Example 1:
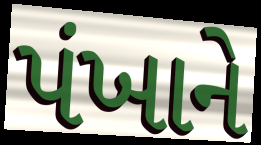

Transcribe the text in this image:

પંખાને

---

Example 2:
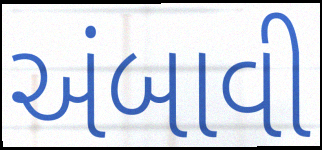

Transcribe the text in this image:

અંબાવી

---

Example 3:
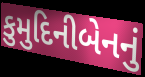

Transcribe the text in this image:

કુમુદિનીબેનનું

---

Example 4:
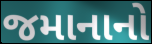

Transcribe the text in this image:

જમાનાનો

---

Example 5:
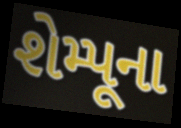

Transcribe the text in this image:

શેમ્પૂના